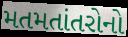
મતમતાંતરોનો